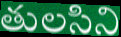
తులసిని